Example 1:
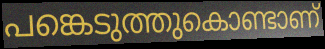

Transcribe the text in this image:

പങ്കെടുത്തുകൊണ്ടാണ്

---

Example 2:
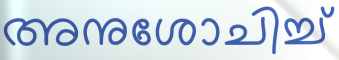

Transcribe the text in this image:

അനുശോചിച്ച്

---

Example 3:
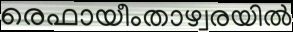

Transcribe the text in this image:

രെഫായീംതാഴ്വരയിൽ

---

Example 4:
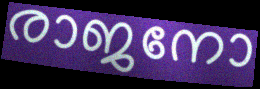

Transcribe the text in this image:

രാജനോ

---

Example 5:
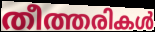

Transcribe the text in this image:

തീത്തരികൾ